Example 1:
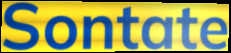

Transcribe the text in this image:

Sontate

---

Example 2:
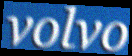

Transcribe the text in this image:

volvo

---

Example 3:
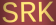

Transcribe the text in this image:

SRK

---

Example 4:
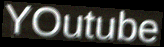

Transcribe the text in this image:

YOutube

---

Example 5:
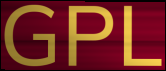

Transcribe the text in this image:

GPL